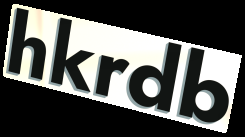
hkrdb